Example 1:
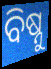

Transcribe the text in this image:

ବିଷ୍ନୁ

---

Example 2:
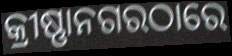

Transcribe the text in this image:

କ୍ରୀଷ୍ଣାନଗରଠାରେ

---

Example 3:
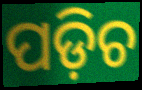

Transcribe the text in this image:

ପଡ଼ିଚ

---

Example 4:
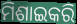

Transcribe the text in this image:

ମିଶାଇକରି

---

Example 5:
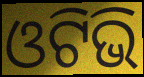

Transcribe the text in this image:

ଓଟିଭି